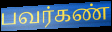
பவர்கண்